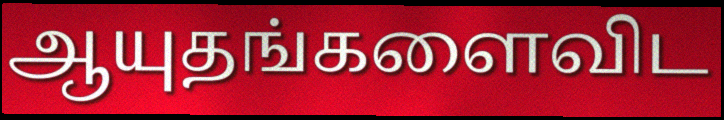
ஆயுதங்களைவிட